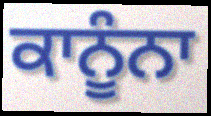
ਕਾਨੂੰਨਾ